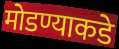
मोडण्याकडे